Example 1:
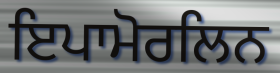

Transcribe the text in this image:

ਇਪਾਮੋਰਲਿਨ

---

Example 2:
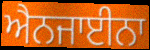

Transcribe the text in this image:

ਐਨਜਾਈਨਾ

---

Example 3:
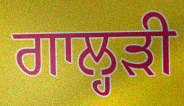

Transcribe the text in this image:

ਗਾਲ੍ਹੜੀ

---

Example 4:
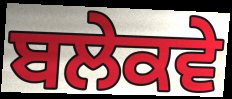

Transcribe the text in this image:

ਬਲੇਕਵੇ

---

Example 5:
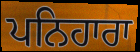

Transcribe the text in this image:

ਪਨਿਹਾਰਾ